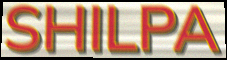
SHILPA